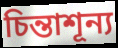
চিন্তাশূন্য